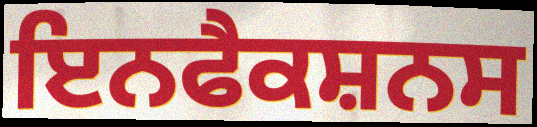
ਇਨਫੈਕਸ਼ਨਸ